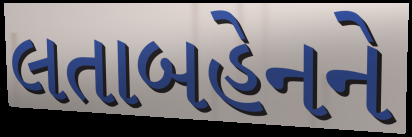
લતાબહેનને